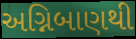
અગ્નિબાણથી